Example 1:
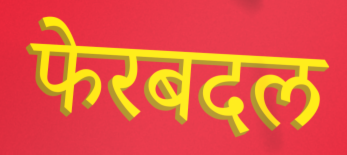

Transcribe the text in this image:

फेरबदल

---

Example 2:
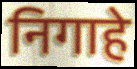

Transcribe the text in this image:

निगाहे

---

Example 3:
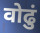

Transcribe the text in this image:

वोढुं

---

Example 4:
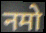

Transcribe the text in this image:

नमो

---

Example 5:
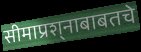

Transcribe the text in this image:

सीमाप्रश्नाबाबतचे